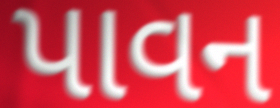
પાવન